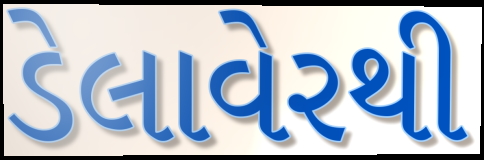
ડેલાવેરથી